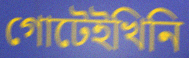
গোটেইখিনি